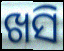
ଖସି